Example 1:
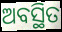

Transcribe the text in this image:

ଅବସ୍ଥିତ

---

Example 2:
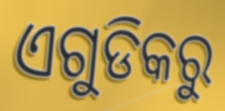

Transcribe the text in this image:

ଏଗୁଡିକରୁ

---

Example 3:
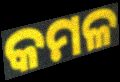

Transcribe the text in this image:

କମଳ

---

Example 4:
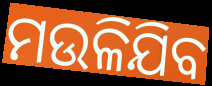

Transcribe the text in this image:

ମଉଳିଯିବ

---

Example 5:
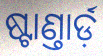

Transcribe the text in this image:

ଷ୍ଟାଣ୍ତାର୍ଡ଼